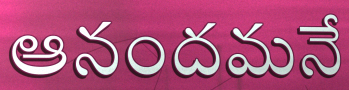
ఆనందమనే